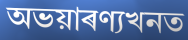
অভয়াৰণ্যখনত